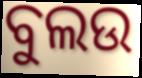
ବୁଲଉ